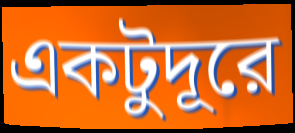
একটুদূরে